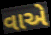
વાએ